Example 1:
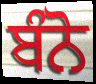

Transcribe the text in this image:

ਬੰਨੋ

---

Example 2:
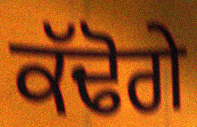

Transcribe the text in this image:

ਕੱਢੋਗੇ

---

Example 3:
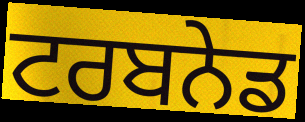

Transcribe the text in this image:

ਟਰਬਨੇਡ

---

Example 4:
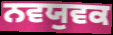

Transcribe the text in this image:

ਨਵਯੁਵਕ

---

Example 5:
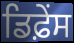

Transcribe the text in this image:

ਡਿਫ਼ੇਂਸ